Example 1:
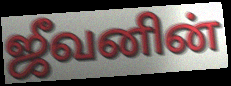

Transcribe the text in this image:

ஜீவனின்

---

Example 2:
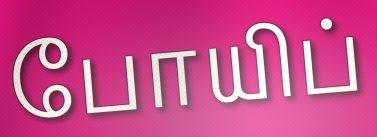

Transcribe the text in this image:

போயிப்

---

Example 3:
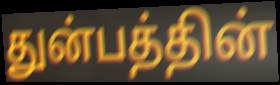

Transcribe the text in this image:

துன்பத்தின்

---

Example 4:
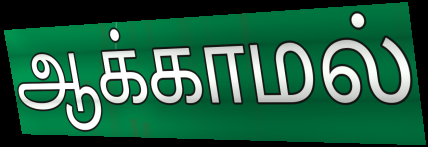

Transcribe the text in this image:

ஆக்காமல்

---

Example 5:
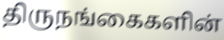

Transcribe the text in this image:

திருநங்கைகளின்